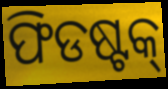
ଫିଡଷ୍ଟକ୍